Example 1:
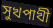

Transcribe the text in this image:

সুখপাখী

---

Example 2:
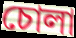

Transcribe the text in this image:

চোলা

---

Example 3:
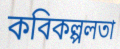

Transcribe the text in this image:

কবিকল্পলতা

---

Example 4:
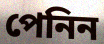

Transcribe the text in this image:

পেনিন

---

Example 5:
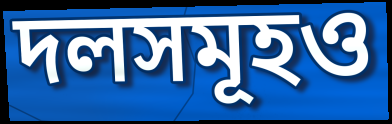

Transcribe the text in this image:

দলসমূহও